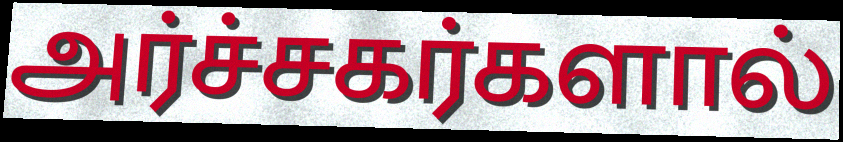
அர்ச்சகர்களால்